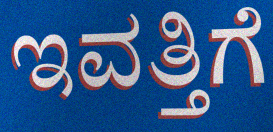
ಇವತ್ತಿಗೆ